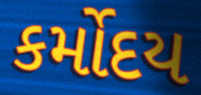
કર્મોદય